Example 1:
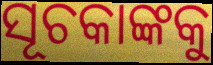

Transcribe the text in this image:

ସୂଚକାଙ୍କକୁ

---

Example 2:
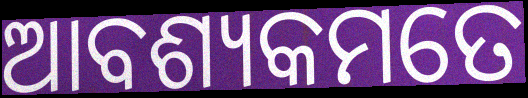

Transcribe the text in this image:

ଆବଶ୍ୟକମତେ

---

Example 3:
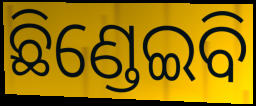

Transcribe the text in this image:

ଛିଣ୍ଡେଇବି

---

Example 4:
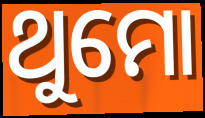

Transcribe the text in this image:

ଥୁମୋ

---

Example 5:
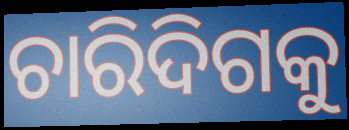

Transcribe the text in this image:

ଚାରିଦିଗକୁ